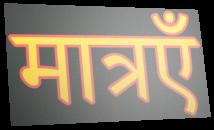
मात्रएँ